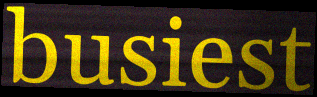
busiest